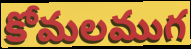
కోమలముగ